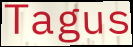
Tagus